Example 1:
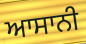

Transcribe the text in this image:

ਆਸਾਨੀ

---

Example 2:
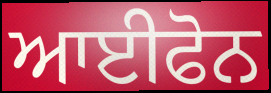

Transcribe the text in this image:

ਆਈਫੋਨ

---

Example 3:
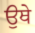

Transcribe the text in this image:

ਉਥੇ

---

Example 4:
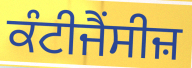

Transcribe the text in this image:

ਕੰਟੀਜੈਂਸੀਜ਼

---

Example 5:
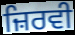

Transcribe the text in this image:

ਜ਼ਿਰਵੀ